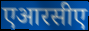
एआरसीए